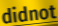
didnot